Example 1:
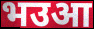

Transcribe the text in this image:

भउआ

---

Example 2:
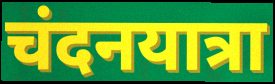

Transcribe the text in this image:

चंदनयात्रा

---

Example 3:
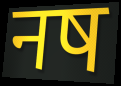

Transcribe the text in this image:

नष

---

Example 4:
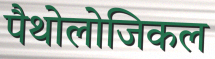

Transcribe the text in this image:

पैथोलोजिकल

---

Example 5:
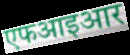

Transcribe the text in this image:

एफआइआर